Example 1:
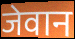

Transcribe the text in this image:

जेवान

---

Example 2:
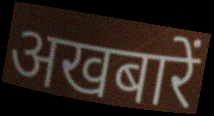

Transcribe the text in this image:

अखबारें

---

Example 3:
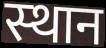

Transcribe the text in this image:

स्‍थान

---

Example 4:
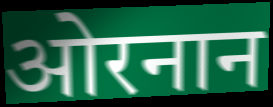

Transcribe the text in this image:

ओरनान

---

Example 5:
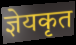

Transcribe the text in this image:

ज्ञेयकृत